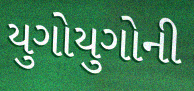
યુગોયુગોની